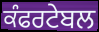
ਕੰਫਰਟੇਬਲ